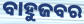
ବାହୁଜବର